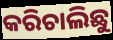
କରିଚାଲିଛୁ